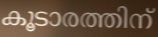
കൂടാരത്തിന്